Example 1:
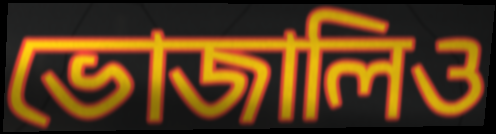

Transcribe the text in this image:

ভোজালিও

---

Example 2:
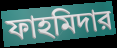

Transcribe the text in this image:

ফাহমিদার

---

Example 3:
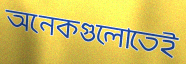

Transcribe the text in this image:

অনেকগুলোতেই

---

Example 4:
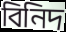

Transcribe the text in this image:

বিনিদ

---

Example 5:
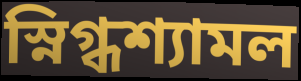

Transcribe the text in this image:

স্নিগ্ধশ্যামল